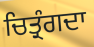
ਚਿਤ੍ਰੰਗਦਾ